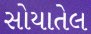
સોયાતેલ